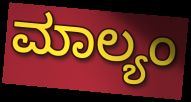
ಮಾಲ್ಯಂ